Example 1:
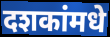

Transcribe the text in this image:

दशकांमधे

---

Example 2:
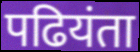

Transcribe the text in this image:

पढियंता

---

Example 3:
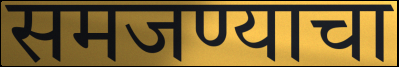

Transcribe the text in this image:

समजण्याचा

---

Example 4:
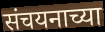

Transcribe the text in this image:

संचयनाच्या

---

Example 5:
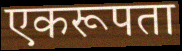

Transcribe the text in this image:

एकरूपता